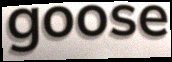
goose